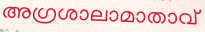
അഗ്രശാലാമാതാവ്